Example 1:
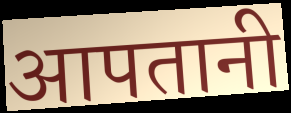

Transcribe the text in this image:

आपतानी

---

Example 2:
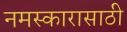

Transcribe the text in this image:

नमस्कारासाठी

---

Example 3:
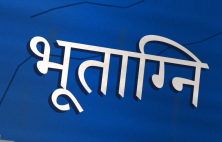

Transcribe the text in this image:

भूताग्नि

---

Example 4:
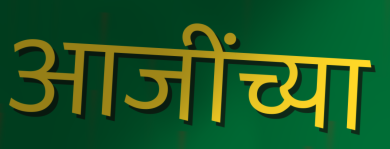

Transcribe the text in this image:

आजींच्या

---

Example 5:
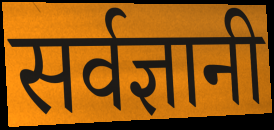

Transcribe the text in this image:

सर्वज्ञानी